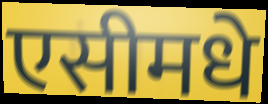
एसीमधे